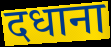
दधाना